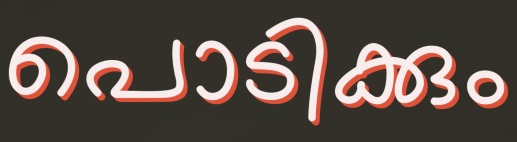
പൊടിക്കും